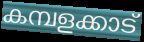
കമ്പളക്കാട്